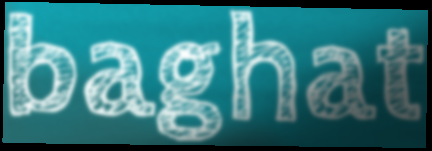
baghat